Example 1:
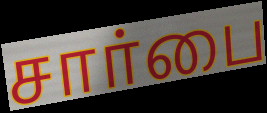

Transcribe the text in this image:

சார்பை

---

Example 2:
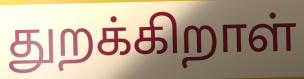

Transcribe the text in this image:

துறக்கிறாள்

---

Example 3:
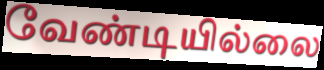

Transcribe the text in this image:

வேண்டியில்லை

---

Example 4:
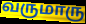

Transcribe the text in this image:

வருமாரு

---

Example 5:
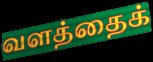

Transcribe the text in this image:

வளத்தைக்